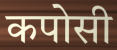
कपोसी